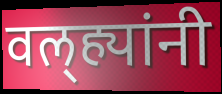
वल्ह्यांनी